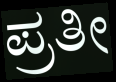
ಪ್ರತೀ